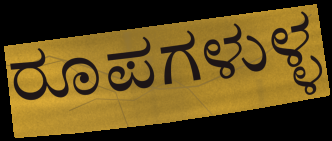
ರೂಪಗಳುಳ್ಳ